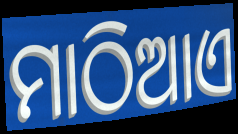
ମାଠିଆଏ